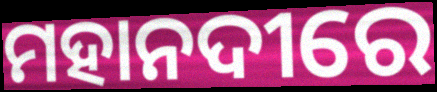
ମହାନଦୀରେ